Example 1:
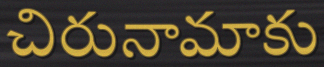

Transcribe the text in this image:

చిరునామాకు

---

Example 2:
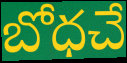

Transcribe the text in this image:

బోధచే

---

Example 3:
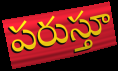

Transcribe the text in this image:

పరుస్తూ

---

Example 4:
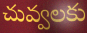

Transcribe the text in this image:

చువ్వలకు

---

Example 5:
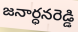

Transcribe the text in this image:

జనార్ధనరెడ్డి